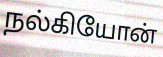
நல்கியோன்